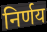
निर्णय